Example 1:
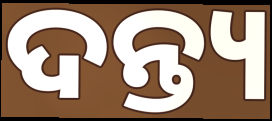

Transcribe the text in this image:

ଦନ୍ତ୍ୟ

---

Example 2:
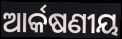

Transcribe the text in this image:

ଆର୍କଷଣୀୟ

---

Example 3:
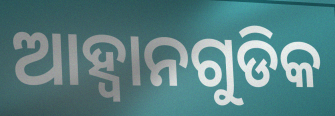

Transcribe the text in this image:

ଆହ୍ୱାନଗୁଡିକ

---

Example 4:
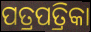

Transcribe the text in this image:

ପତ୍ରପତ୍ରିକା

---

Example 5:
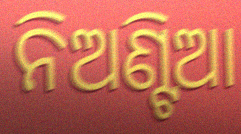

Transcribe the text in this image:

ନିଅଣ୍ଟିଆ